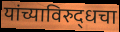
यांच्याविरुद्धचा